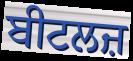
ਬੀਟਲਜ਼